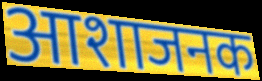
आशाजनक